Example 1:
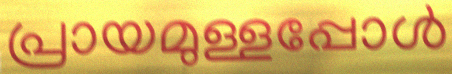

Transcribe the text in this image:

പ്രായമുള്ളപ്പോൾ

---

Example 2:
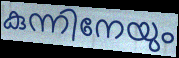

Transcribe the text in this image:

കുന്നിനേയും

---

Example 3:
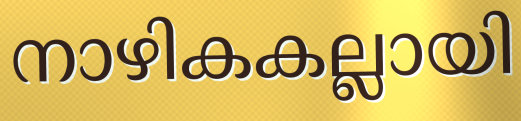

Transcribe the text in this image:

നാഴികകല്ലായി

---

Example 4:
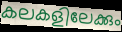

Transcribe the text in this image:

കലകളിലേക്കും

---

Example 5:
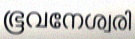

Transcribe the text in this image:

ഭൂവനേശ്വരി